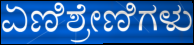
ಏಣಿಶ್ರೇಣಿಗಳು